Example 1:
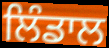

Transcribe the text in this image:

ਲਿੰਡਾਲ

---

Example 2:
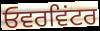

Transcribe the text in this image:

ਓਵਰਵਿਂਟਰ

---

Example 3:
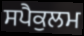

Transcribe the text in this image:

ਸਪੈਕੁਲਮ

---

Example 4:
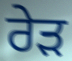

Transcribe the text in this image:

ਰੇੜ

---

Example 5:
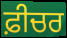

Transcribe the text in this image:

ਫ਼ੀਚਰ